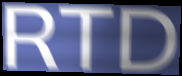
RTD